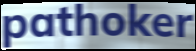
pathoker